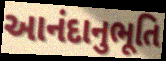
આનંદાનુભૂતિ